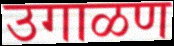
उगाळण